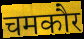
चमकौर